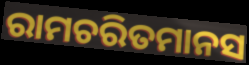
ରାମଚରିତମାନସ